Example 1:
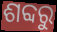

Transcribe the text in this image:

ଶବ୍ଦରୁ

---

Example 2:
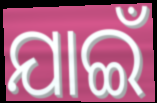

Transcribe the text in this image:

ଯାଇଁ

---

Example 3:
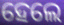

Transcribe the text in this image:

ହେଲେ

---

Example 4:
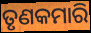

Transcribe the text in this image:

ତୃଣକମାରି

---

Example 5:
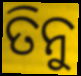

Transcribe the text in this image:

ତିନୁ